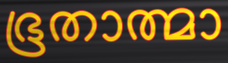
ഭൂതാത്മാ